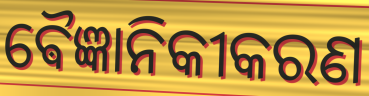
ଵୈଜ୍ଞାନିକୀକରଣ